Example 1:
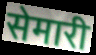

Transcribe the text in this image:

सेमारी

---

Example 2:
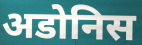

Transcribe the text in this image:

अडोनिस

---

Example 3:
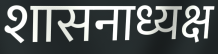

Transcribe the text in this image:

शासनाध्यक्ष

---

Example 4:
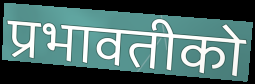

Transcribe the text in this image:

प्रभावतीको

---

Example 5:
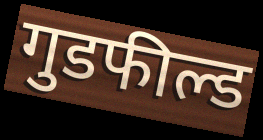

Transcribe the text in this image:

गुडफील्ड